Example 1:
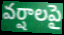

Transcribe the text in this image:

వర్షాలపై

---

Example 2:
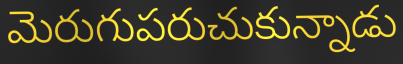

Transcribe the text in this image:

మెరుగుపరుచుకున్నాడు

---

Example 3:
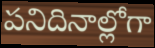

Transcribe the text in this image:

పనిదినాల్లోగా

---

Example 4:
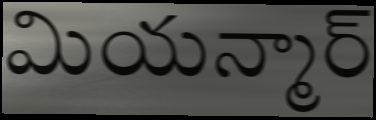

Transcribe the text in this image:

మియన్మార్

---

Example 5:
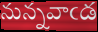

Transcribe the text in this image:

నున్నవాఁడ